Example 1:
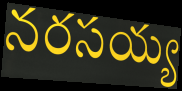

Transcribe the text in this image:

నరసయ్య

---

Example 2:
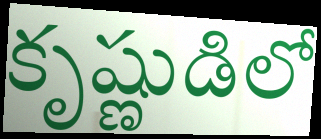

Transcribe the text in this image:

కృష్ణుడిలో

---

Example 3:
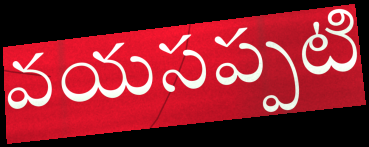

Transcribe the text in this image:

వయసప్పటి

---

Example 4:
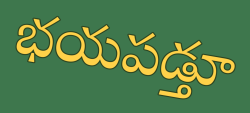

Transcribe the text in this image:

భయపడ్తూ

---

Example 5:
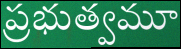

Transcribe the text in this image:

ప్రభుత్వమూ